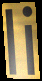
li